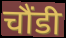
चौंडी